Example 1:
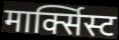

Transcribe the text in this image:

मार्क्सिस्ट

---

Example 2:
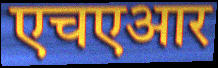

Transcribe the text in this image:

एचएआर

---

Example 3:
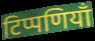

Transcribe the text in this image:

टिप्पणियाँ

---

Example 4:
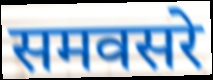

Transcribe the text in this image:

समवसरे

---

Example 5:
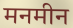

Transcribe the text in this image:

मनमीन